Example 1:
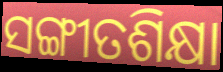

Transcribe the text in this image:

ସଙ୍ଗୀତଶିକ୍ଷା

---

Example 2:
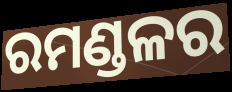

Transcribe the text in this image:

ରମଣ୍ଡଳର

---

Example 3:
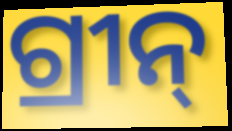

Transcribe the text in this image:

ଗ୍ରୀନ୍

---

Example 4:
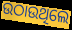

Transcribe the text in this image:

ଉଠାଉଥିଲେ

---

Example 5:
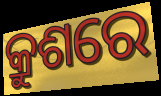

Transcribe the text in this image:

କ୍ରୁଶରେ